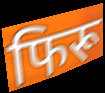
फिरू